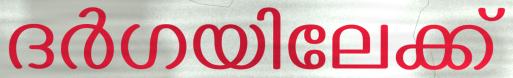
ദർഗയിലേക്ക്